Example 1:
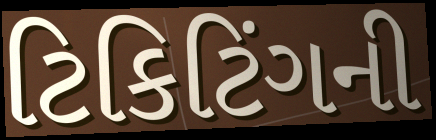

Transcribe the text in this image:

ટિકિટિંગની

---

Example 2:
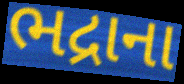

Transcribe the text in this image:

ભદ્રાના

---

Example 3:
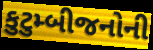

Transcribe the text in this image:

કુટુમ્બીજનોની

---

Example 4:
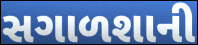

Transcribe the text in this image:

સગાળશાની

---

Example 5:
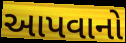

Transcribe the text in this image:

આપવાનો